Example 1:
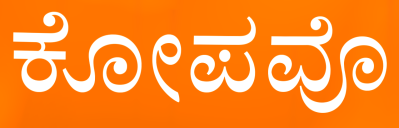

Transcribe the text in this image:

ಕೋಪವೊ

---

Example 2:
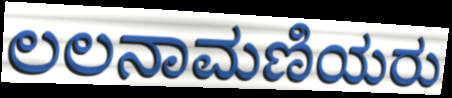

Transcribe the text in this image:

ಲಲನಾಮಣಿಯರು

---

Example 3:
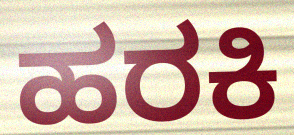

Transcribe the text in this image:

ಹರಕಿ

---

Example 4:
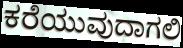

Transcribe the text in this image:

ಕರೆಯುವುದಾಗಲಿ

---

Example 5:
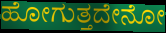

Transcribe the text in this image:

ಹೋಗುತ್ತದೇನೋ